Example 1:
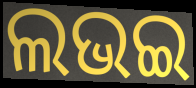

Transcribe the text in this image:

ଲଭଇ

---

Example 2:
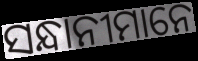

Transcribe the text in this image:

ସନ୍ଧାନୀମାନେ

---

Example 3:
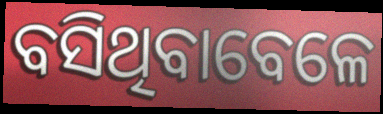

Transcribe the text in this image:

ବସିଥିବାବେଳେ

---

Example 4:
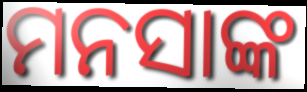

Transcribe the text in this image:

ମନସାଙ୍କ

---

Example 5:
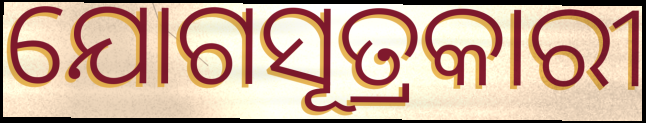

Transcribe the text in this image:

ଯୋଗସୂତ୍ରକାରୀ